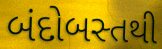
બંદોબસ્તથી